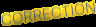
CORRECTION